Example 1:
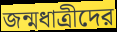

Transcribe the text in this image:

জন্মধাত্রীদের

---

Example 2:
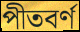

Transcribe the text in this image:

পীতবর্ণ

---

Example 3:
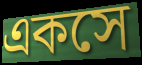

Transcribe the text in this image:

একসে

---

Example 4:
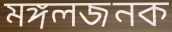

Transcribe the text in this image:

মঙ্গলজনক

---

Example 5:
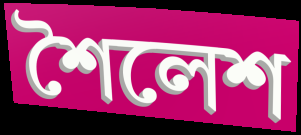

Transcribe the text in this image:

শৈলেশ